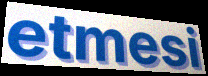
etmesi